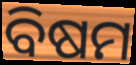
ବିଷମ